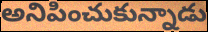
అనిపించుకున్నాడు